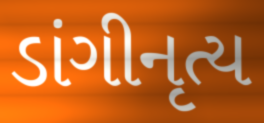
ડાંગીનૃત્ય